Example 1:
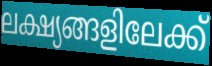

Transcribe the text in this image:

ലക്ഷ്യങ്ങളിലേക്ക്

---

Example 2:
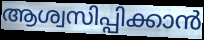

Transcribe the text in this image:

ആശ്വസിപ്പിക്കാൻ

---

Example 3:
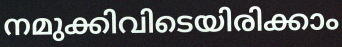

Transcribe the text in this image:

നമുക്കിവിടെയിരിക്കാം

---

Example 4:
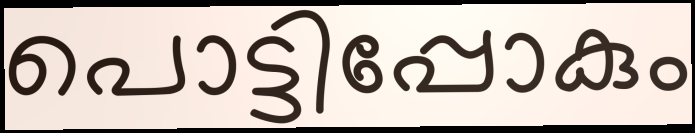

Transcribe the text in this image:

പൊട്ടിപ്പോകും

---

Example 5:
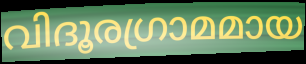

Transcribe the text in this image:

വിദൂരഗ്രാമമായ